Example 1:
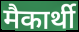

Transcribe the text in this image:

मैकार्थी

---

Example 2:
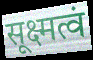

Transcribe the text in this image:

सूक्ष्मत्वं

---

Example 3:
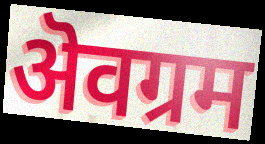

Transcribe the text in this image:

ऄवग्रम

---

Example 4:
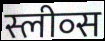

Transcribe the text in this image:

स्लीव्स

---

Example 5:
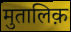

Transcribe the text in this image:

मुतालिक़